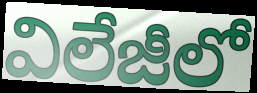
విలేజీలో